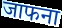
जाफना